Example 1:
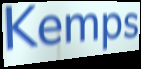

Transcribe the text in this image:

Kemps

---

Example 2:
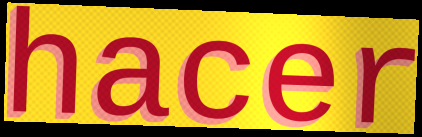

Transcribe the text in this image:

hacer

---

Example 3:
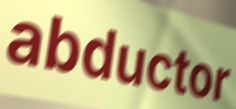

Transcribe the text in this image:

abductor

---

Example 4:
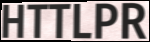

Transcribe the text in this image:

HTTLPR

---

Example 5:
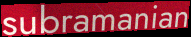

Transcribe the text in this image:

subramanian